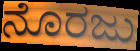
ನೊರಜು